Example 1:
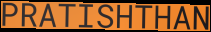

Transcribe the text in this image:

PRATISHTHAN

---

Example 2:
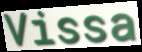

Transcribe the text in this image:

Vissa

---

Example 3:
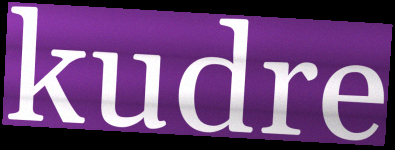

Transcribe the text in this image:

kudre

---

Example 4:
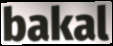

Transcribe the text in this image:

bakal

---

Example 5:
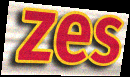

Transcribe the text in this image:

zes